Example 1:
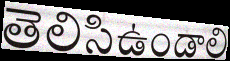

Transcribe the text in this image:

తెలిసిఉండాలి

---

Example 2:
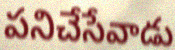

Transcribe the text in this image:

పనిచేసేవాడు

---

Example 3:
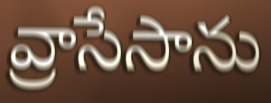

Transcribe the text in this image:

వ్రాసేసాను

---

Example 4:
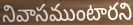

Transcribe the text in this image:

నివాసముంటారని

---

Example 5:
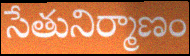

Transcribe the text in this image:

సేతునిర్మాణం